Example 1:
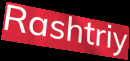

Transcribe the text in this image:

Rashtriy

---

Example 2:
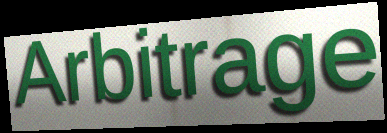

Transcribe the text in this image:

Arbitrage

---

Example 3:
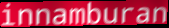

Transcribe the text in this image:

innamburan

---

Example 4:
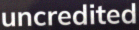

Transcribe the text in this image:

uncredited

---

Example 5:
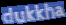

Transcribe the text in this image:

dukkha